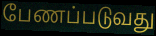
பேணப்படுவது